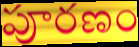
పూరణం